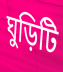
ঘুড়িটি